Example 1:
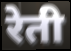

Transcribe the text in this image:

रेती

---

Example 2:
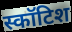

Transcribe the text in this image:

स्कॉटिश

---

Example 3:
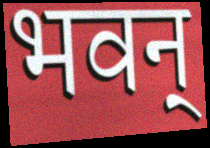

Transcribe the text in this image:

भवन्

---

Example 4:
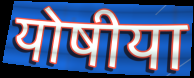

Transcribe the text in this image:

योषीया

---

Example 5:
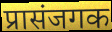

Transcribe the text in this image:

प्रासंजगक